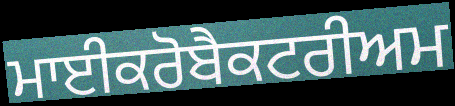
ਮਾਈਕਰੋਬੈਕਟਰੀਅਮ